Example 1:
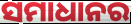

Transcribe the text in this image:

ସମାଧାନର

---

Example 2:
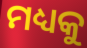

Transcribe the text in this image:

ମଧ୍ୟକୁ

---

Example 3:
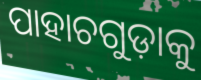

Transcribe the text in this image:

ପାହାଚଗୁଡ଼ାକୁ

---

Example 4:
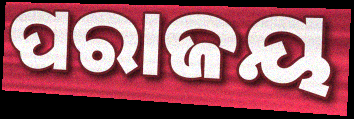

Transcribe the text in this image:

ପରାଜୟ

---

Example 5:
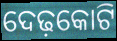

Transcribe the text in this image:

ଦେଢ଼କୋଟି